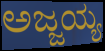
ಅಜ್ಜಯ್ಯ